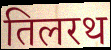
तिलरथ